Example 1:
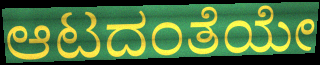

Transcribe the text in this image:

ಆಟದಂತೆಯೇ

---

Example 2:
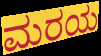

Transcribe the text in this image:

ಮರಯ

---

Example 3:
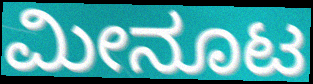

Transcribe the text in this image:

ಮೀನೂಟ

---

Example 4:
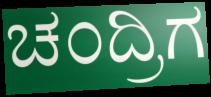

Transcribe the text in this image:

ಚಂದ್ರಿಗ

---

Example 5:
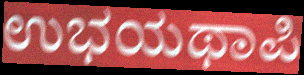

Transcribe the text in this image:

ಉಭಯಥಾಪಿ